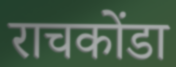
राचकोंडा